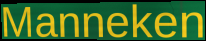
Manneken